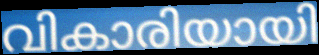
വികാരിയായി